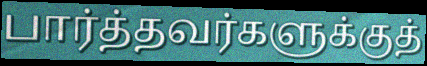
பார்த்தவர்களுக்குத்